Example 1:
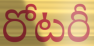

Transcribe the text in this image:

రోటరీ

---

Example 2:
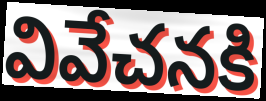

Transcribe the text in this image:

వివేచనకి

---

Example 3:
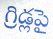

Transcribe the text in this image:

గ్రిడ్లపై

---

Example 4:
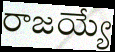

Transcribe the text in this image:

రాజయ్యే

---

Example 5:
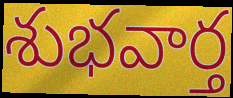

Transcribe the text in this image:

శుభవార్త